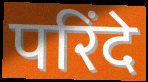
परिंदे